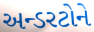
અન્ડરટોને